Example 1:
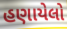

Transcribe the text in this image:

હણાયેલો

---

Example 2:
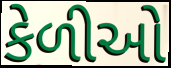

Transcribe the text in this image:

કેળીઓ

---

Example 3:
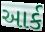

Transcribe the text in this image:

આર્ક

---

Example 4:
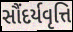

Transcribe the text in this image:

સૌંદર્યવૃત્તિ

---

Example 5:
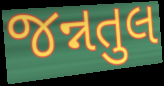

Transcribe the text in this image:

જન્નતુલ